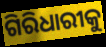
ଗିରିଧାରୀକୁ